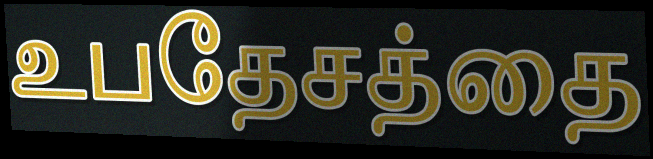
உபதேசத்தை